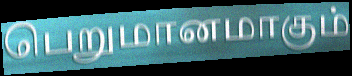
பெறுமானமாகும்